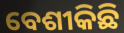
ବେଶୀକିଛି